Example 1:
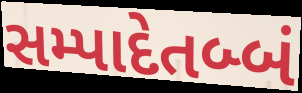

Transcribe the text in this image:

સમ્પાદેતબ્બં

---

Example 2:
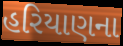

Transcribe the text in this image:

હરિયાણના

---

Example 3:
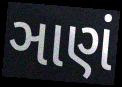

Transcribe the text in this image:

ઞાણં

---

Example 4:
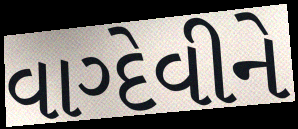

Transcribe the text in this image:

વાગ્દેવીને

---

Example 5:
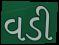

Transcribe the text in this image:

વડી